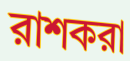
রাশকরা